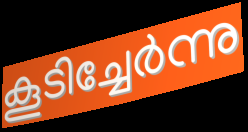
കൂടിച്ചേർന്നു